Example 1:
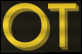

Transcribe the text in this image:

OT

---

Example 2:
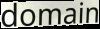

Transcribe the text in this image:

domain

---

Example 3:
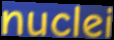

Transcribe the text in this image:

nuclei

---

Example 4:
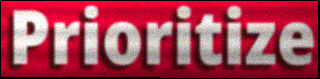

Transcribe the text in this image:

Prioritize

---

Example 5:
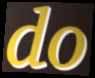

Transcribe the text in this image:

do